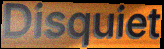
Disquiet